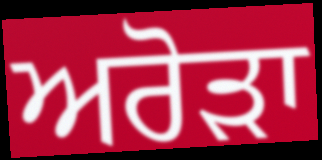
ਅਰੋੜਾ